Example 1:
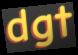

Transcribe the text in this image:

dgt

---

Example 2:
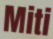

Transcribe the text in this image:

Miti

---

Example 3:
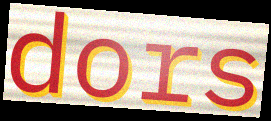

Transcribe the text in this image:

dors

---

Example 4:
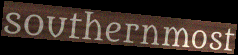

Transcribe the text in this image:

southernmost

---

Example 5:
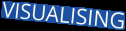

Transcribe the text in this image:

VISUALISING